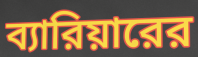
ব্যারিয়ারের